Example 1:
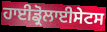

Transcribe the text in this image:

ਹਾਈਡ੍ਰੋਲਾਈਸੇਟਸ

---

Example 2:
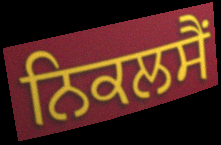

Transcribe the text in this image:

ਨਿਕਲਸੈਂ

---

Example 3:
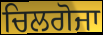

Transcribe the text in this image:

ਚਿਲਗੋਜਾ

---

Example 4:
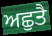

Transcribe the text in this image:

ਅਛੁਤੈ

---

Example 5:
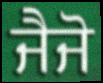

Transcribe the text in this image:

ਜੈਜੋ